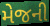
મેજની